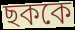
ছককে